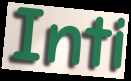
Inti